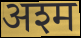
अश्म